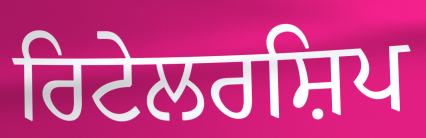
ਰਿਟੇਲਰਸ਼ਿਪ